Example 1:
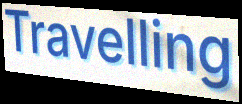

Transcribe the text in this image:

Travelling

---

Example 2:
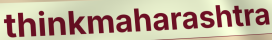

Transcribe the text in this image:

thinkmaharashtra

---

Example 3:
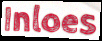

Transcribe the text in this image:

Inloes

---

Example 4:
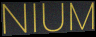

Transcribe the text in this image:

NIUM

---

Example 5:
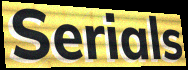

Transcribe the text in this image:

Serials